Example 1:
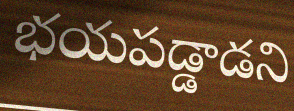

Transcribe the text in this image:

భయపడ్డాడని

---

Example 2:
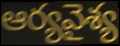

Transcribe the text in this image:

ఆర్యవైశ్య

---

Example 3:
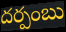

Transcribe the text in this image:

దర్పంబు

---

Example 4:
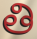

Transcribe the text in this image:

తి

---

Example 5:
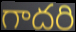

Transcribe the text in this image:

గాదరి